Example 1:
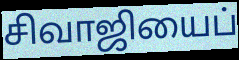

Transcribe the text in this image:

சிவாஜியைப்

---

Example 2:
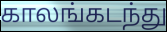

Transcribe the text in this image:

காலங்கடந்து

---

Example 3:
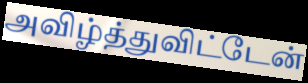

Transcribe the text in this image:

அவிழ்த்துவிட்டேன்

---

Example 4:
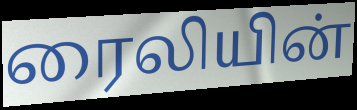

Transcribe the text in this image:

ரைலியின்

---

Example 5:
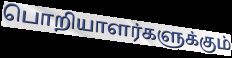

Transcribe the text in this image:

பொறியாளர்களுக்கும்